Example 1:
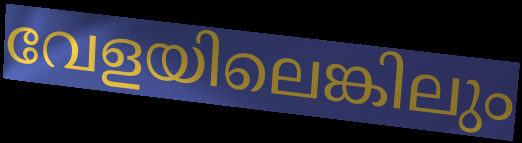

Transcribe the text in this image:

വേളയിലെങ്കിലും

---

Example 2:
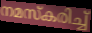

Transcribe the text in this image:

നമസ്കരിച്ച്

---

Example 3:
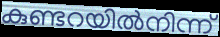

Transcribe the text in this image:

കുണ്ടറയിൽനിന്ന്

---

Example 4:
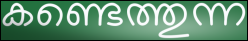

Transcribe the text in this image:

കണ്ടെത്തുന്ന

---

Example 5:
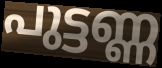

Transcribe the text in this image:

പുട്ടണ്ണ